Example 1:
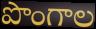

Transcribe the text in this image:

పొంగాల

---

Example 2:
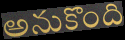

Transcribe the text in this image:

అనుకొంది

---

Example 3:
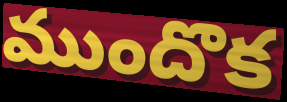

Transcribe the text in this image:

ముందొక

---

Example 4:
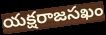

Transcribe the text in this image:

యక్షరాజసఖం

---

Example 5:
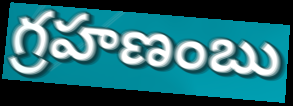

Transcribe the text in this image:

గ్రహణంబు